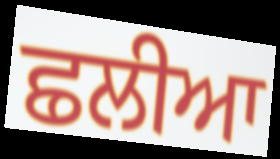
ਛਲੀਆ